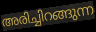
അരിച്ചിറങ്ങുന്ന